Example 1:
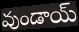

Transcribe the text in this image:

వుండాయ్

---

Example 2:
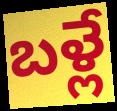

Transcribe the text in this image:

బళ్లే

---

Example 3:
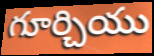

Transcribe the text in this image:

గూర్చియు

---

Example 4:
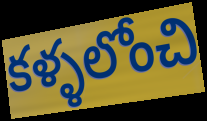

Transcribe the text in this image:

కళ్ళలోంచి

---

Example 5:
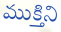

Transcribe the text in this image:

ముక్తిని